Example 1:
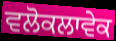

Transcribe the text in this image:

ਵਲੋਕਲਾਵੇਕ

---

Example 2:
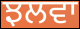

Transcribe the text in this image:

ਝਲਵਾ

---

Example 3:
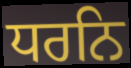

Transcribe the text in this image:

ਧਰਨਿ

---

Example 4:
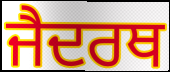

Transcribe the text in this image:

ਜੈਦਰਥ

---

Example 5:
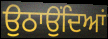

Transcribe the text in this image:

ਉਠਾਉਂਦਿਆਂ